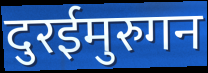
दुरईमुरुगन